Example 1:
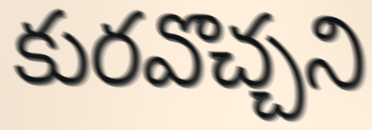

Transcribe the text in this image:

కురవొచ్చని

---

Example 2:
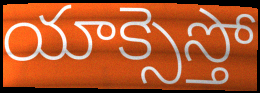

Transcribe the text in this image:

యాక్సెస్తో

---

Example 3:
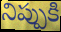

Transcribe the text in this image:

నిప్పుకి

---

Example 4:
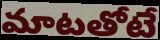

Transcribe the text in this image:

మాటతోటే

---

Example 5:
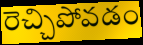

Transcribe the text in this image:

రెచ్చిపోవడం